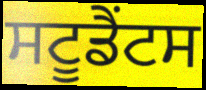
ਸਟੂਡੈਂਟਸ